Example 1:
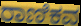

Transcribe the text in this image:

ರಾಣಿಕವ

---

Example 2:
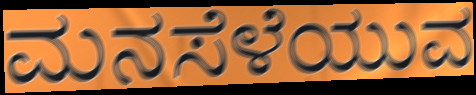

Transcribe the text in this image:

ಮನಸೆಳೆಯುವ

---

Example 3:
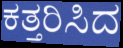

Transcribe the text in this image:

ಕತ್ತರಿಸಿದ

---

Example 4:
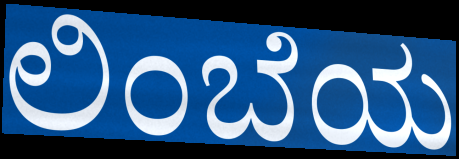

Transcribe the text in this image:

ಲಿಂಬೆಯ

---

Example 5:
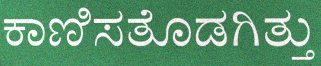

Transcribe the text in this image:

ಕಾಣಿಸತೊಡಗಿತ್ತು